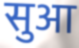
सुआ